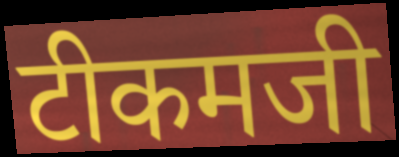
टीकमजी